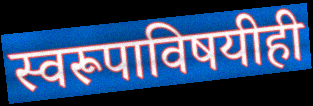
स्वरूपाविषयीही